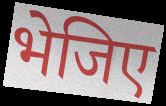
भेजिए